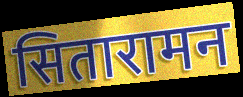
सितारामन